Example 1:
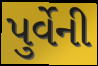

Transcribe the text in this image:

પુર્વેની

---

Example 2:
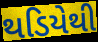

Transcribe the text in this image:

થડિયેથી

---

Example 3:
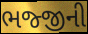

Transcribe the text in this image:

ભજ્જીની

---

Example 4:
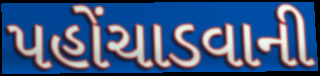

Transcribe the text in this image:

પહોંચાડવાની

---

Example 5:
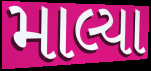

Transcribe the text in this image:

માલ્યા